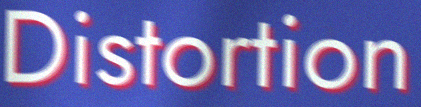
Distortion